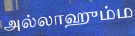
அல்லாஹும்ம